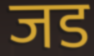
जड